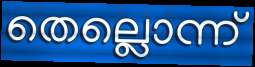
തെല്ലൊന്ന്